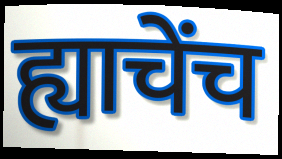
ह्याचेंच